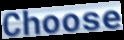
Choose